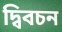
দ্বিবচন